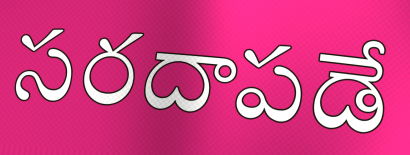
సరదాపడే